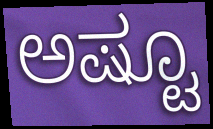
ಅಷ್ಟೂ